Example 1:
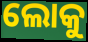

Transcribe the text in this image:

ଲୋକୁ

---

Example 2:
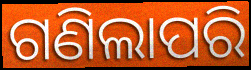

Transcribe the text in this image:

ଗଣିଲାପରି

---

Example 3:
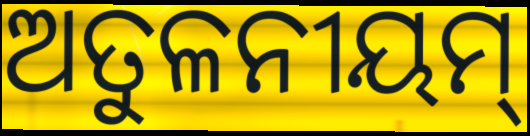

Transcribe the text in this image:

ଅତୁଳନୀୟମ୍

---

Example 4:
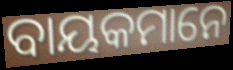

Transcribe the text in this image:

ବାୟକମାନେ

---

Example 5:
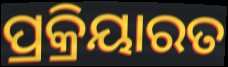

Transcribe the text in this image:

ପ୍ରକ୍ରିୟାରତ